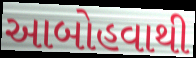
આબોહવાથી